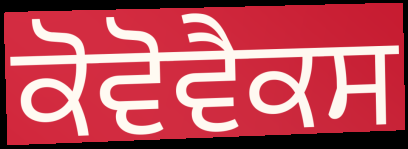
ਕੋਵੋਵੈਕਸ